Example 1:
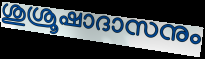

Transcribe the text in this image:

ശുശ്രൂഷാദാസനും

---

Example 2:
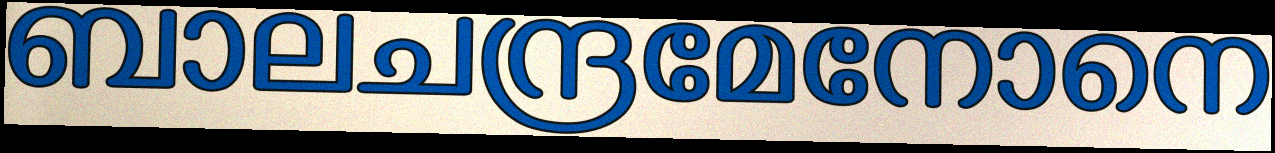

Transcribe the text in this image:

ബാലചന്ദ്രമേനോനെ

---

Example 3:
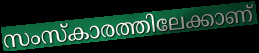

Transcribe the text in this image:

സംസ്കാരത്തിലേക്കാണ്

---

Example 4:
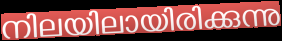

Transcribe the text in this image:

നിലയിലായിരിക്കുന്നു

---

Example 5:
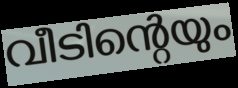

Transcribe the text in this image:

വീടിന്റെയും